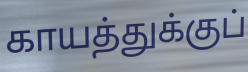
காயத்துக்குப்